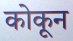
कोकून